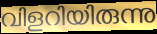
വിളറിയിരുന്നു